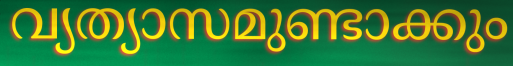
വ്യത്യാസമുണ്ടാക്കും